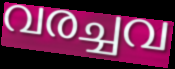
വരച്ചവ